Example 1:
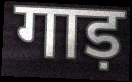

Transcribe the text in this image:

गाड़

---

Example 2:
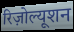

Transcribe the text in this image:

रिज़ोल्यूशन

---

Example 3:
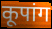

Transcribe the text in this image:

कूपांग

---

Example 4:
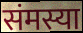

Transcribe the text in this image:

संमस्या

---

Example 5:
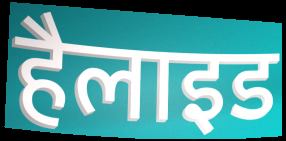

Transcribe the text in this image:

हैलाइड